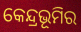
କେନ୍ଦ୍ରଭୂମିର